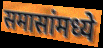
समासांमध्ये